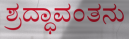
ಶ್ರದ್ಧಾವಂತನು